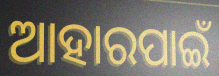
ଆହାରପାଇଁ